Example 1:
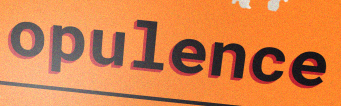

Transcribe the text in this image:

opulence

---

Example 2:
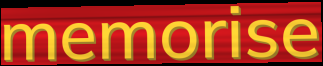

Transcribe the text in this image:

memorise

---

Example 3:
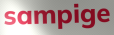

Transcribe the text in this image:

sampige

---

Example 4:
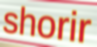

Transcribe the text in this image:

shorir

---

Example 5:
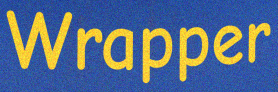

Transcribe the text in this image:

Wrapper